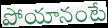
పోయానంటే